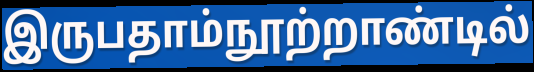
இருபதாம்நூற்றாண்டில்